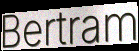
Bertram